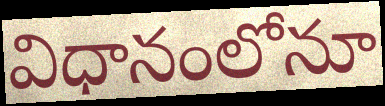
విధానంలోనూ